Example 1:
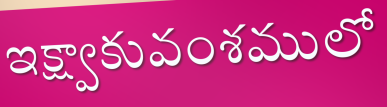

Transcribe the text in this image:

ఇక్ష్వాకువంశములో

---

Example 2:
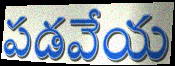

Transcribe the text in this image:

పడవేయ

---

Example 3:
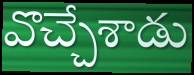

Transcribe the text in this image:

వొచ్చేశాడు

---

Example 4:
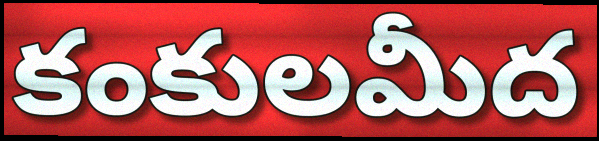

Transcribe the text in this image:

కంకులమీద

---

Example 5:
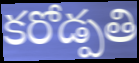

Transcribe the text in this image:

కరోడ్పతి